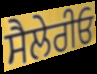
ਸੈਲੇਰੀਓ